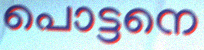
പൊട്ടനെ